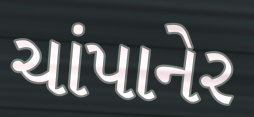
ચાંપાનેર